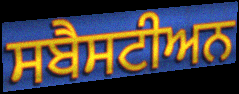
ਸਬੈਸਟੀਅਨ